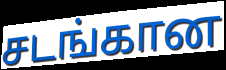
சடங்கான